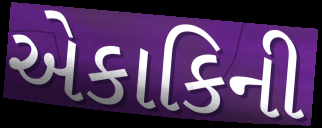
એકાકિની